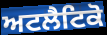
ਅਟਲੈਟਿਕੋ